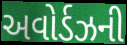
અવોર્ડઝની